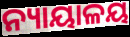
ନ୍ୟାୟାଳୟ